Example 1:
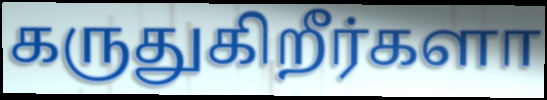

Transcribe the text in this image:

கருதுகிறீர்களா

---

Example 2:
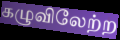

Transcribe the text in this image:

கழுவிலேற்ற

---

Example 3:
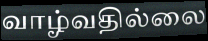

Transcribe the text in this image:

வாழ்வதில்லை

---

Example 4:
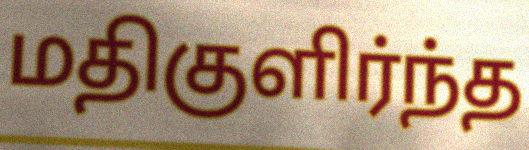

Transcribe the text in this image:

மதிகுளிர்ந்த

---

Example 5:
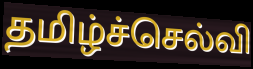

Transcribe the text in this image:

தமிழ்ச்செல்வி